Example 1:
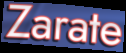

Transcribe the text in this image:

Zarate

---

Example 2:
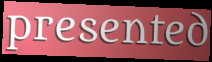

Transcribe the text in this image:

presented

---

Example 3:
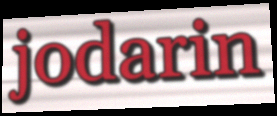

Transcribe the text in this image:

jodarin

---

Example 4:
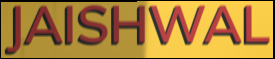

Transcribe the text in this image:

JAISHWAL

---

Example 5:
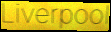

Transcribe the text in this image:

Liverpool